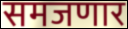
समजणार